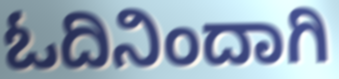
ಓದಿನಿಂದಾಗಿ